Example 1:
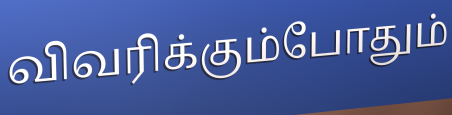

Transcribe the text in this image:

விவரிக்கும்போதும்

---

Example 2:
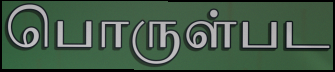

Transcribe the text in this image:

பொருள்பட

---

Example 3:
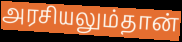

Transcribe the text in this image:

அரசியலும்தான்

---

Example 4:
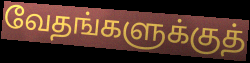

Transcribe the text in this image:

வேதங்களுக்குத்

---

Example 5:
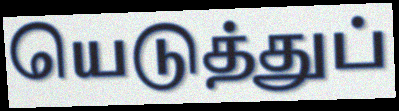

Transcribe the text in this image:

யெடுத்துப்